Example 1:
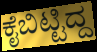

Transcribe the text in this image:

ಕೈಬಿಟ್ಟಿದ್ದ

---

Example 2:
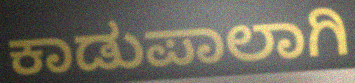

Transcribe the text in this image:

ಕಾಡುಪಾಲಾಗಿ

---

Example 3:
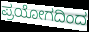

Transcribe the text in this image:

ಪ್ರಯೋಗದಿಂದ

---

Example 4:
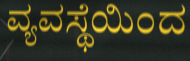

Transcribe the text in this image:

ವ್ಯವಸ್ಥೆಯಿಂದ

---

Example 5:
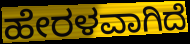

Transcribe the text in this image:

ಹೇರಳವಾಗಿದೆ